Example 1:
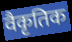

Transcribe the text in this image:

वैकृतिक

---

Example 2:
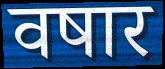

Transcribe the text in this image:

वषार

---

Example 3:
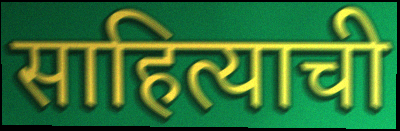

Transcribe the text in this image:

साहित्याची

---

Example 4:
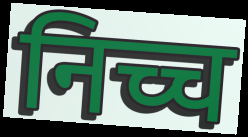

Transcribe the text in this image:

निच्च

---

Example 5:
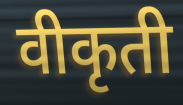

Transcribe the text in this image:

वीकृती